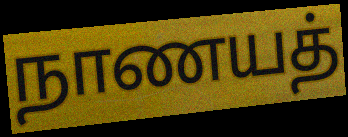
நாணயத்